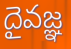
దైవజ్ఞ